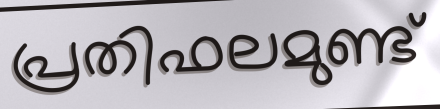
പ്രതിഫലമുണ്ട്